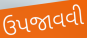
ઉપજાવવી